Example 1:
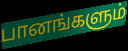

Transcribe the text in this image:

பானங்களும்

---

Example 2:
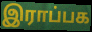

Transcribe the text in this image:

இராப்பக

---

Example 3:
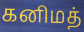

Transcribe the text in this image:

கனிமத்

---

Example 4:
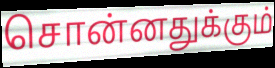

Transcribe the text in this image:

சொன்னதுக்கும்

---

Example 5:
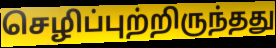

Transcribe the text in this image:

செழிப்புற்றிருந்தது